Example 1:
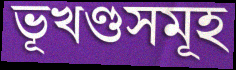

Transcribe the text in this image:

ভূখণ্ডসমূহ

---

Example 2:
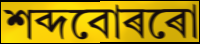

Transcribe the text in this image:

শব্দবোৰৰো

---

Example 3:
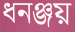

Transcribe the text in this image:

ধনঞ্জয়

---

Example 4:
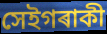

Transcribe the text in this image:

সেইগৰাকী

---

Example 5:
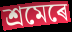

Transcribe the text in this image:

শ্ৰমেৰে